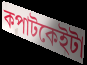
কপাটকেইটা